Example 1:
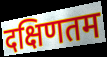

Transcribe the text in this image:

दक्षिणतम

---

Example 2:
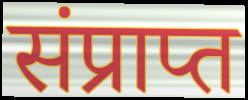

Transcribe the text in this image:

संप्राप्त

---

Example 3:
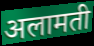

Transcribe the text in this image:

अलामती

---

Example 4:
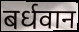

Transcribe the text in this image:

बर्धवान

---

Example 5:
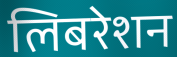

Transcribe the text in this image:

लिबरेशन